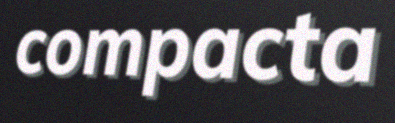
compacta